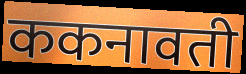
ककनावती